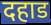
दहाड